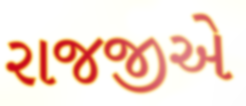
રાજજીએ